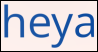
heya